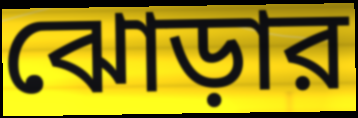
ঝোড়ার